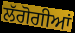
ਲੱਗੋਗੀਆਂ